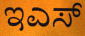
ಇಎಸ್